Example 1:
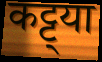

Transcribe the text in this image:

कट्ट्या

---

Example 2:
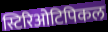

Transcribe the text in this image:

स्टिरिओटिपिकल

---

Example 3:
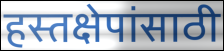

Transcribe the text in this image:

हस्तक्षेपांसाठी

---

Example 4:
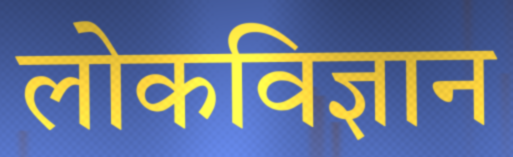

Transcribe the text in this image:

लोकविज्ञान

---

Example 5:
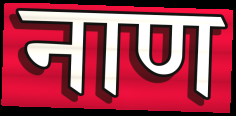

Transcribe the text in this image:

नाण